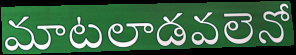
మాటలాడవలెనో